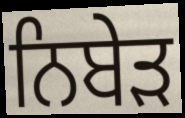
ਨਿਬੇੜ